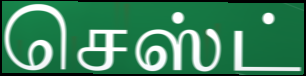
செஸ்ட்